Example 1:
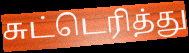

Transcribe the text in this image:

சுட்டெரித்து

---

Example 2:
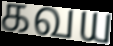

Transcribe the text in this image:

கவய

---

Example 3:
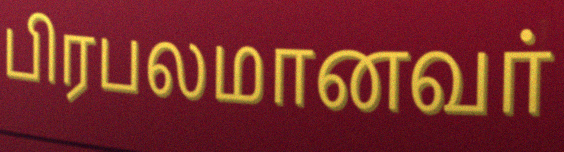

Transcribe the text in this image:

பிரபலமானவர்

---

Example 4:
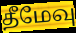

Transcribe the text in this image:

தீமேவு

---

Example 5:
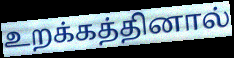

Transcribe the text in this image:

உறக்கத்தினால்